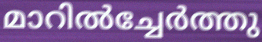
മാറിൽച്ചേർത്തു